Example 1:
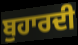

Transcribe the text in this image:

ਬੁਹਾਰਦੀ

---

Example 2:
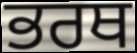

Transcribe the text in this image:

ਭਰਥ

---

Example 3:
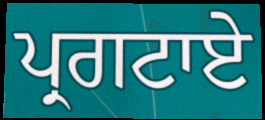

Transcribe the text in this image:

ਪ੍ਰਗਟਾਏ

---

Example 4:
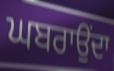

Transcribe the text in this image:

ਘਬਰਾਉਂਦਾ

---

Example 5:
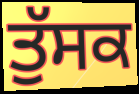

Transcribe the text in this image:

ਤੁੱਸਕ